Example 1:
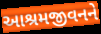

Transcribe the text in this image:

આશ્રમજીવનને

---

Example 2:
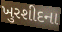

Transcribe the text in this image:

ખુરશીદના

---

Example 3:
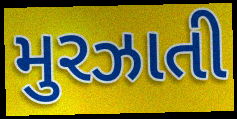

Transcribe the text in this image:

મુરઝાતી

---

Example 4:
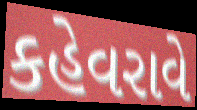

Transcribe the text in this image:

કહેવરાવે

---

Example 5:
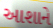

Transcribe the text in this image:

આશાને